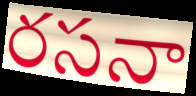
రసనా